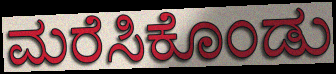
ಮರೆಸಿಕೊಂಡು